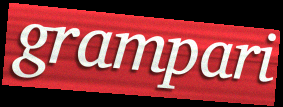
grampari